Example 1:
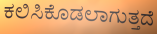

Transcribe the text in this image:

ಕಲಿಸಿಕೊಡಲಾಗುತ್ತದೆ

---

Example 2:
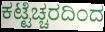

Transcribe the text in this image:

ಕಟ್ಟೆಚ್ಚರದಿಂದ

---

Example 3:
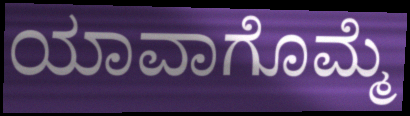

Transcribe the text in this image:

ಯಾವಾಗೊಮ್ಮೆ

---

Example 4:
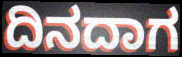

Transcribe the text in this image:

ದಿನದಾಗ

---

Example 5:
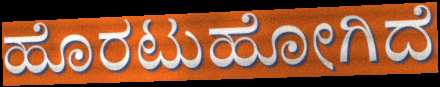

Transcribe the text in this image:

ಹೊರಟುಹೋಗಿದೆ